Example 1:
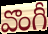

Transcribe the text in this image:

వొంగీ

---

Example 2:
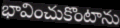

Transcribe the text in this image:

భావించుకొంటాను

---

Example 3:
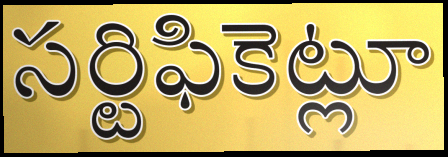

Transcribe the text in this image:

సర్టిఫికెట్లూ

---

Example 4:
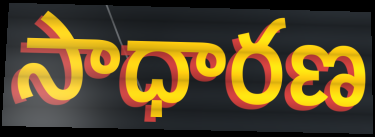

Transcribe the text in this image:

సాధారణ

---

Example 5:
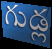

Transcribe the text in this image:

గుడ్ల